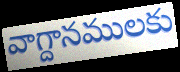
వాగ్దానములకు